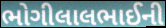
ભોગીલાલભાઈની